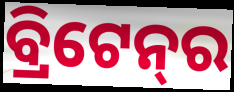
ବ୍ରିଟେନ୍‌ର